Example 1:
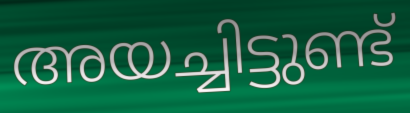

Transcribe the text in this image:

അയച്ചിട്ടുണ്ട്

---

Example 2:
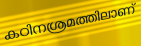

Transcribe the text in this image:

കഠിനശ്രമത്തിലാണ്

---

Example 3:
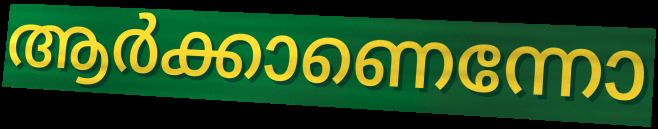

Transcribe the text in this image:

ആർക്കാണെന്നോ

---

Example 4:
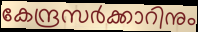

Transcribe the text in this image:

കേന്ദ്രസർക്കാറിനും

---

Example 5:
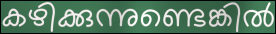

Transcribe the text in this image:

കഴിക്കുന്നുണ്ടെങ്കിൽ